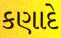
કણાદે